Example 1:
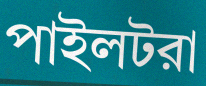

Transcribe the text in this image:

পাইলটরা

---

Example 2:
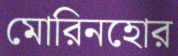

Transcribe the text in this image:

মোরিনহোর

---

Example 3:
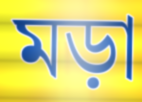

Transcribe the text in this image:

মড়া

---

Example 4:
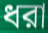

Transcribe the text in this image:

ধরা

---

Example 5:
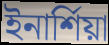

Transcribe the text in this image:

ইনার্শিয়া